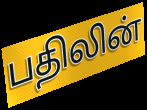
பதிலின்